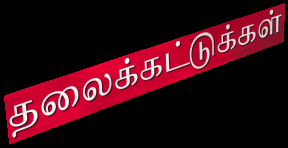
தலைக்கட்டுக்கள்